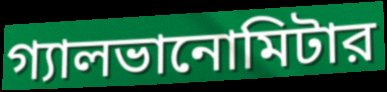
গ্যালভানোমিটার